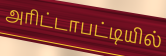
அரிட்டாபட்டியில்